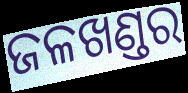
ଜଳଖଣ୍ଡର